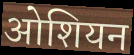
ओशियन